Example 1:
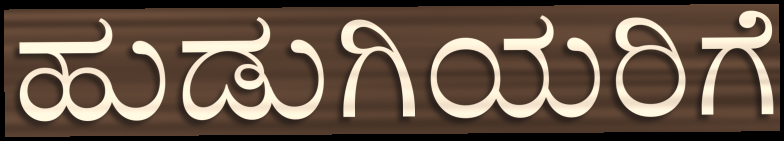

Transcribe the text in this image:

ಹುಡುಗಿಯರಿಗೆ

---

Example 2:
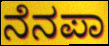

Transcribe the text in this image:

ನೆನಪಾ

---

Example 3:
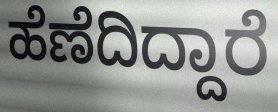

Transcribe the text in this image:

ಹೆಣೆದಿದ್ದಾರೆ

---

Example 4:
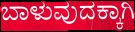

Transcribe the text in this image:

ಬಾಳುವುದಕ್ಕಾಗಿ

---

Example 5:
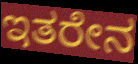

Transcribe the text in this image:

ಇತರೇನ